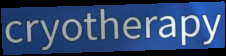
cryotherapy